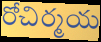
రోచిర్మయ